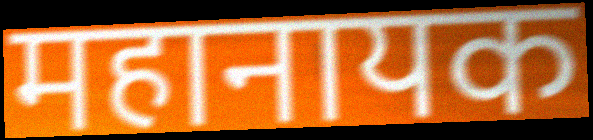
महानायक